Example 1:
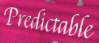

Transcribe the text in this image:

Predictable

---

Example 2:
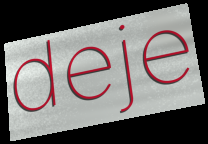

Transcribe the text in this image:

deje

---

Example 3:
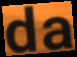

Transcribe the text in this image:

da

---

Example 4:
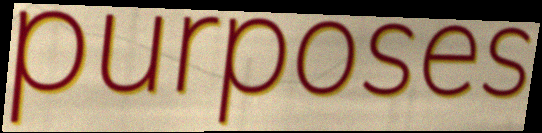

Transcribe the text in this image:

purposes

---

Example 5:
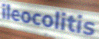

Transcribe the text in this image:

ileocolitis